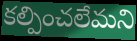
కల్పించలేమని